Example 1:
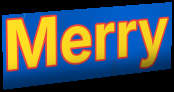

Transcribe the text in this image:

Merry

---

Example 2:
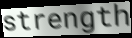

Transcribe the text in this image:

strength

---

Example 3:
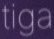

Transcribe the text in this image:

tiga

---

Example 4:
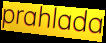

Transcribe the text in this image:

prahlada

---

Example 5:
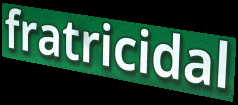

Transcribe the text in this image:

fratricidal